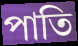
পাতি